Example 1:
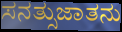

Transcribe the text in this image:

ಸನತ್ಸುಜಾತನು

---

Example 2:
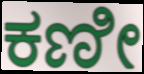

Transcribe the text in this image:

ಕಣೀ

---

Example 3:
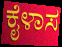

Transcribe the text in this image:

ಕೈಳಾಸ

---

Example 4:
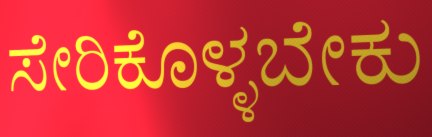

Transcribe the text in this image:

ಸೇರಿಕೊಳ್ಳಬೇಕು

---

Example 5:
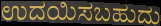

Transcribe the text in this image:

ಉದಯಿಸಬಹುದು